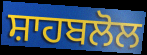
ਸ਼ਾਹਬਲੋਲ